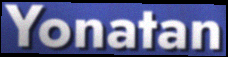
Yonatan